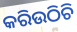
କରିଉଠିଚି